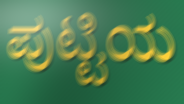
ಪುಟ್ಟಿಯ